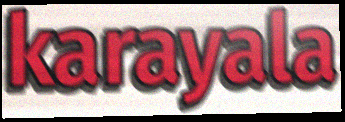
karayala